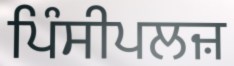
ਪਿੰਸੀਪਲਜ਼